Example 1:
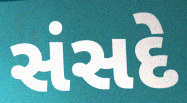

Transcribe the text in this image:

સંસદે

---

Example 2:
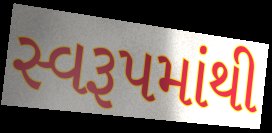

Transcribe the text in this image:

સ્વરૂપમાંથી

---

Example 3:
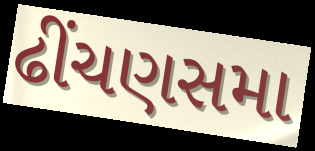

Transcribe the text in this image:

ઢીંચણસમા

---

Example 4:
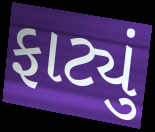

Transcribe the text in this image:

ફાટ્યું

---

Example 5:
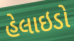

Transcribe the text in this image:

હેલાઇડો